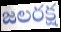
జలరక్ష